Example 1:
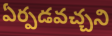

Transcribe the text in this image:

ఏర్పడవచ్చని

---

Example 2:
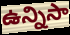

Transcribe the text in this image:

ఉన్నిసా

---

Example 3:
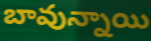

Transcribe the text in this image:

బావున్నాయి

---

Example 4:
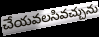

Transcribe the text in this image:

చేయవలసివచ్చును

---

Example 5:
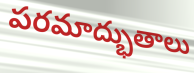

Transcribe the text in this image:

పరమాద్భుతాలు